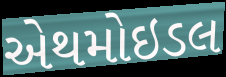
એથમોઇડલ